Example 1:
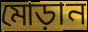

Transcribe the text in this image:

মোড়ান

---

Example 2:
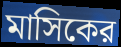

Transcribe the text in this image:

মাসিকের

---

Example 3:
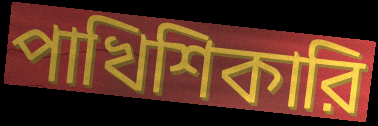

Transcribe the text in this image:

পাখিশিকারি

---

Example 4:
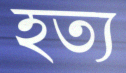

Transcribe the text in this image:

হত্য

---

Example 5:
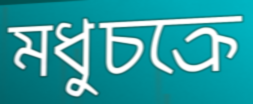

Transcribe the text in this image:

মধুচক্রে